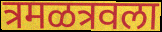
त्रमळत्रवला